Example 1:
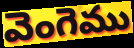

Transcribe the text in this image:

వెంగెము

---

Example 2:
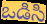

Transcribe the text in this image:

ఒడిసి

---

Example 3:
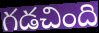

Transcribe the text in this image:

గడచింది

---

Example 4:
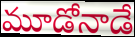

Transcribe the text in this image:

మూడోనాడే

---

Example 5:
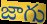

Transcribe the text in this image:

జాగు